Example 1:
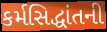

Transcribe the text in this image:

કર્મસિદ્ધાંતની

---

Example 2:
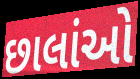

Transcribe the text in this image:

છાલાંઓ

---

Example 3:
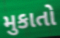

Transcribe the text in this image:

મુકાતો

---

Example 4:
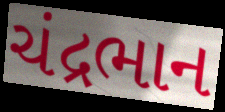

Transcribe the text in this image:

ચંદ્રભાન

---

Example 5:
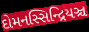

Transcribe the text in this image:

દોમનસ્સિન્દ્રિયઞ્ચ